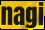
nagi